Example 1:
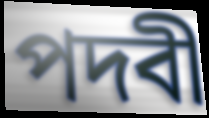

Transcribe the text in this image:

পদবী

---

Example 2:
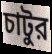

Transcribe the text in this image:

চাটুর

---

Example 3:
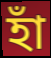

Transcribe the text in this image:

হাঁ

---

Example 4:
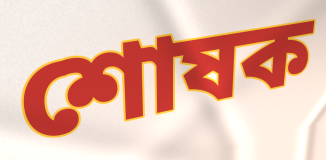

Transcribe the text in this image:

শোষক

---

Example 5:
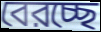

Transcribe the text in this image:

বেরচ্ছে